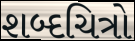
શબ્દચિત્રો